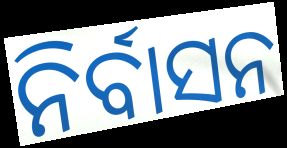
ନିର୍ବାସନ